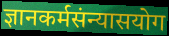
ज्ञानकर्मसंन्यासयोग